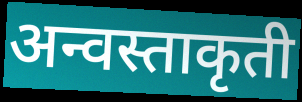
अन्वस्ताकृती